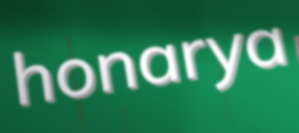
honarya